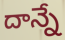
దాన్నే